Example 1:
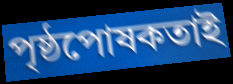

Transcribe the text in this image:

পৃষ্ঠপোষকতাই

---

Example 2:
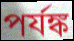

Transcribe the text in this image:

পর্যঙ্ক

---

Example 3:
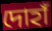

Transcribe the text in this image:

দোহাঁ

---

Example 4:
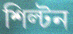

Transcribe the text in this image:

শিল্টন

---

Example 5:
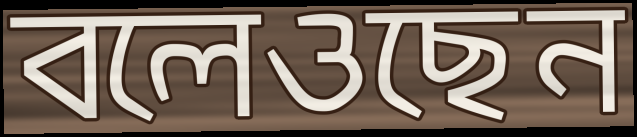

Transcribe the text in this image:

বলেওছেন